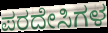
ಪರದೇಸಿಗಳ